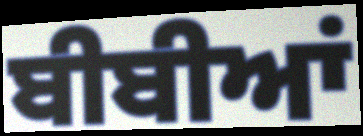
ਬੀਬੀਆਂ